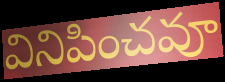
వినిపించవూ